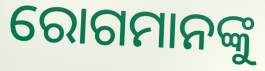
ରୋଗମାନଙ୍କୁ